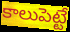
కాలుపెట్టే